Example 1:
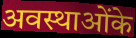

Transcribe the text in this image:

अवस्थाओंके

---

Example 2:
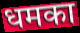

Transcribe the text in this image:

धमका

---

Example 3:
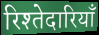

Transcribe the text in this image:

रिश्तेदारियाँ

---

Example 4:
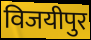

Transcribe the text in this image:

विजयीपुर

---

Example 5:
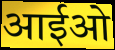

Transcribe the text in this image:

आईओ